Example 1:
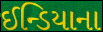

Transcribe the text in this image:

ઈન્ડિયાના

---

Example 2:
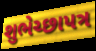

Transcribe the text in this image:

શુભેચ્છાપત્ર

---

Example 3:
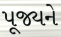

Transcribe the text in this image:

પૂજ્યને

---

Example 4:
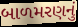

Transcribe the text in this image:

બાળમરણનું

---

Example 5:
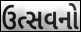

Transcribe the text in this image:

ઉત્સવનો